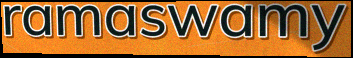
ramaswamy